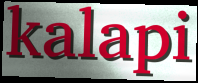
kalapi